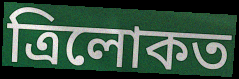
ত্ৰিলোকত